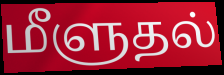
மீளுதல்